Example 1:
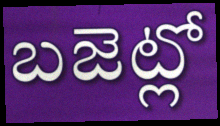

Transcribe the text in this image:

బజెట్లో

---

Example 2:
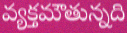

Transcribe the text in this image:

వ్యక్తమౌతున్నది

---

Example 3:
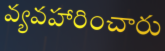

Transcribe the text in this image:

వ్యవహారించారు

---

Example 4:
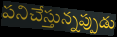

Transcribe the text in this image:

పనిచేస్తున్నప్పుడు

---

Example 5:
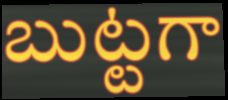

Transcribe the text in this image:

బుట్టగా